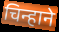
चिन्हाने